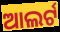
ଆଲର୍ଟ